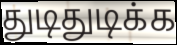
துடிதுடிக்க